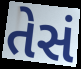
તેસં